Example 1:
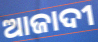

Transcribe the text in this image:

ଆଜାଦୀ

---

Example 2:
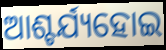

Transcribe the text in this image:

ଆଶ୍ଚର୍ଯ୍ୟହୋଇ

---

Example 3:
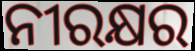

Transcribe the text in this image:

ନୀରକ୍ଷର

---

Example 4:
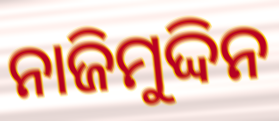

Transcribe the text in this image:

ନାଜିମୁଦ୍ଦିନ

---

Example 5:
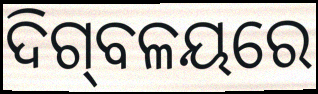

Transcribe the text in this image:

ଦିଗ୍‌ବଳୟରେ